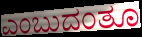
ಎಂಬುದಂತೂ